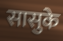
सासुके